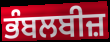
ਭੰਬਲਬੀਜ਼